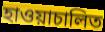
হাওয়াচালিত